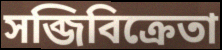
সব্জিবিক্রেতা